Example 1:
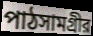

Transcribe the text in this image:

পাঠসামগ্রীর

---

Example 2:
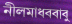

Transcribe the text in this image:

নীলমাধববাবু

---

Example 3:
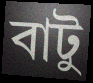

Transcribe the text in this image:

বাটু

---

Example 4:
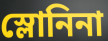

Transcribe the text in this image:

স্লোনিনা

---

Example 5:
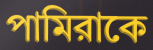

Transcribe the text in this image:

পামিরাকে